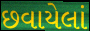
છવાયેલાં